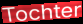
Tochter